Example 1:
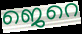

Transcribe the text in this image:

ജെറെ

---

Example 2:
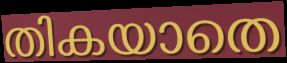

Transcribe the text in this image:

തികയാതെ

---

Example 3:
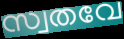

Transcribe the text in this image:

സ്വതവേ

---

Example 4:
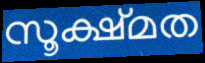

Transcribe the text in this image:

സൂക്ഷ്മത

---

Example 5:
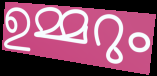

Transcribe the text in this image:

ഉമ്മറും